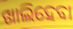
ଖାଲିହେବା